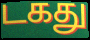
டகது